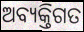
ଅବ୍ୟକ୍ତିଗତ